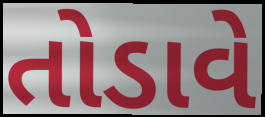
તોડાવે